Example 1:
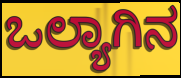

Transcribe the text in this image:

ಒಲ್ಯಾಗಿನ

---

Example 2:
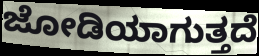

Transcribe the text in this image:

ಜೋಡಿಯಾಗುತ್ತದೆ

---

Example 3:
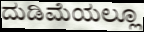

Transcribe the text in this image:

ದುಡಿಮೆಯಲ್ಲೂ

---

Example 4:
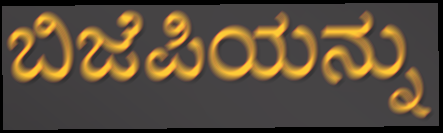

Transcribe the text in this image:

ಬಿಜೆಪಿಯನ್ನು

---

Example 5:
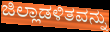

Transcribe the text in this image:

ಜಿಲ್ಲಾಡಳಿತವನ್ನು